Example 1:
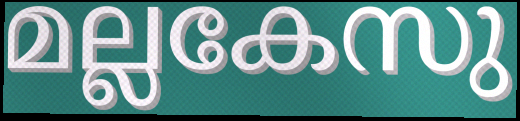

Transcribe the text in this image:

മല്ലകേസു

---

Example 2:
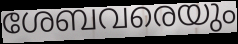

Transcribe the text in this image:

ശേബവരെയും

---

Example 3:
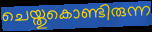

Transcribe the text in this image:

ചെയ്തുകൊണ്ടിരുന്ന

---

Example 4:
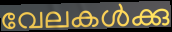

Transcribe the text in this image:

വേലകൾക്കു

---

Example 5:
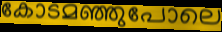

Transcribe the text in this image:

കോടമഞ്ഞുപോലെ